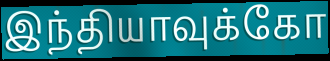
இந்தியாவுக்கோ